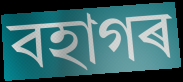
বহাগৰ